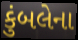
કુંબલેના